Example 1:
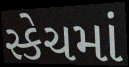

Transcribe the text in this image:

સ્કેચમાં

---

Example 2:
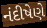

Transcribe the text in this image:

નંદીષેણે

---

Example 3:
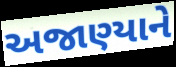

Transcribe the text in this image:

અજાણ્યાને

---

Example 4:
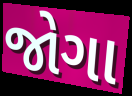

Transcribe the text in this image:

જોગા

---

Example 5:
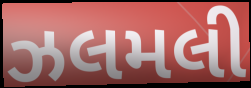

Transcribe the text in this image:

ઝલમલી